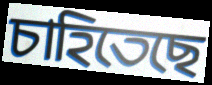
চাহিতেছে